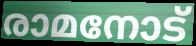
രാമനോട്